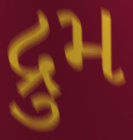
દ્રુમ